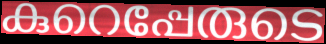
കുറെപ്പേരുടെ